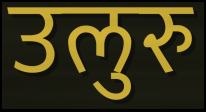
उलुरु